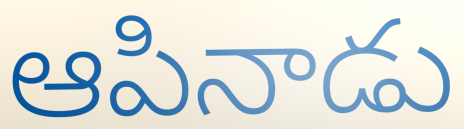
ఆపినాడు